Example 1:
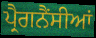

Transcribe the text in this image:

ਪ੍ਰੈਗਨੈਂਸੀਆਂ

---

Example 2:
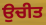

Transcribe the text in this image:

ਉਚੀਤ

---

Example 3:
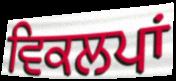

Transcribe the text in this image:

ਵਿਕਲਪਾਂ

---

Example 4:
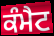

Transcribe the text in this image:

ਕੰਮੈਟ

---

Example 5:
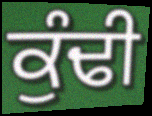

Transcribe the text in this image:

ਕੁੰਢੀ